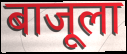
बाजूला